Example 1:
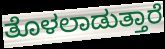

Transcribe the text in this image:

ತೊಳಲಾಡುತ್ತಾರೆ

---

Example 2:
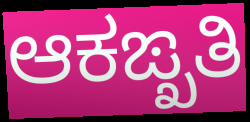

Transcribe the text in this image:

ಆಕಙ್ಖತಿ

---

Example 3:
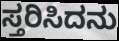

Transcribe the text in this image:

ಸ್ತರಿಸಿದನು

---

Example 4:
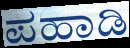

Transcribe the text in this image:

ಪಹಾಡಿ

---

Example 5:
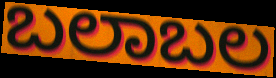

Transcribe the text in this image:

ಬಲಾಬಲ